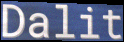
Dalit